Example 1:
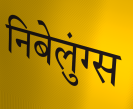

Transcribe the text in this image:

निबेलुंग्स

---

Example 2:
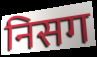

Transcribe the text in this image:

निसग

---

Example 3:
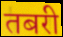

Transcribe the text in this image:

तबरी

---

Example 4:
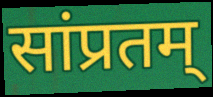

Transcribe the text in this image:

सांप्रतम्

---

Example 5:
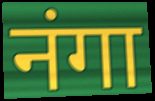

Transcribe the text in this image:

नंगा